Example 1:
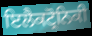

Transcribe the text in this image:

ਇਲੈਕਟ੍ਰੋਨਿਕੀ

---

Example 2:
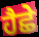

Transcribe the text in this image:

ਹੈਛੇ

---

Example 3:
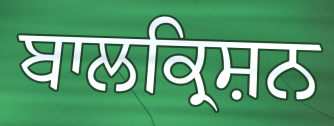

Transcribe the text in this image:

ਬਾਲਕ੍ਰਿਸ਼ਨ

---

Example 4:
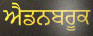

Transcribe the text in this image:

ਐਡਨਬਰੂਕ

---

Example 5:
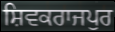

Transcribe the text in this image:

ਸ਼ਿਵਕਰਾਜਪੁਰ